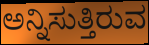
ಅನ್ನಿಸುತ್ತಿರುವ